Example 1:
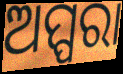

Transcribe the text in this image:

ଅପ୍ପରା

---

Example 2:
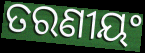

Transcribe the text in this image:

ତରଣୀୟଂ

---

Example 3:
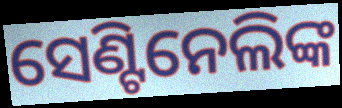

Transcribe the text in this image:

ସେଣ୍ଟିନେଲିଙ୍କ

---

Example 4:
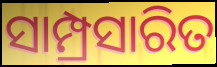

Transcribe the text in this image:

ସାମ୍ପ୍ରସାରିତ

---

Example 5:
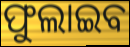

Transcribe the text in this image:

ଫୁଲାଇବ